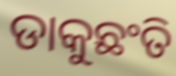
ଡାକୁଛଂତି